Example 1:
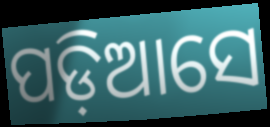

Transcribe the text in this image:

ପଡ଼ିଆସେ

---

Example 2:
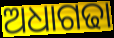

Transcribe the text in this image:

ଅଧାଗଢା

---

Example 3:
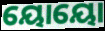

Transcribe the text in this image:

ୟୋୟୋ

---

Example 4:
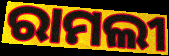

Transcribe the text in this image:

ରାମଲୀ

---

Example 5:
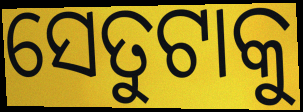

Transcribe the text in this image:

ସେତୁଟାକୁ